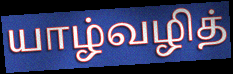
யாழ்வழித்